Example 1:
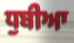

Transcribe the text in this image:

ਧੁਬੀਆ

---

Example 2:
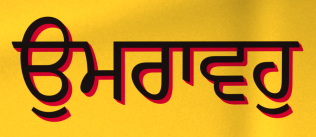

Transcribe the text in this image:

ਉਮਰਾਵਹੁ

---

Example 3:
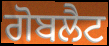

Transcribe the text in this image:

ਗੋਬਲੈਟ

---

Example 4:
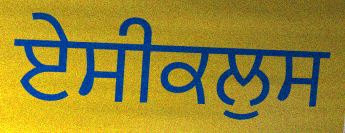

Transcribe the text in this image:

ਏਸੀਕਲੁਸ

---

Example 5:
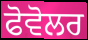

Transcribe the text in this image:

ਫੋਵੋਲਰ